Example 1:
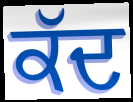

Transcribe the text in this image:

ਕੱਦ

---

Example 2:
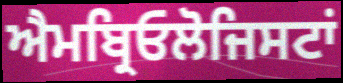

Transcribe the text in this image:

ਐਮਬ੍ਰਿਓਲੋਜਿਸਟਾਂ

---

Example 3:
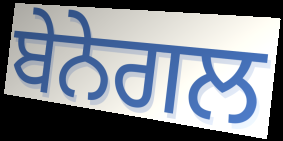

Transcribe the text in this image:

ਬੇਨੇਗਲ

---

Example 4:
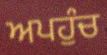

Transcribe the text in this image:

ਅਪਹੁੰਚ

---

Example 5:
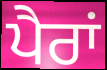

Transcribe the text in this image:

ਪੈਰਾਂ